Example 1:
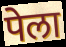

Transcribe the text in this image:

पेला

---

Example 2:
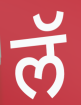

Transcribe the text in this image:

लॅ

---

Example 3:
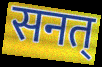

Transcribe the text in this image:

सनत्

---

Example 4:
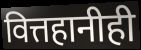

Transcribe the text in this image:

वित्तहानीही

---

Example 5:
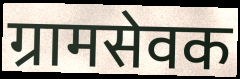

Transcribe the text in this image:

ग्रामसेवक